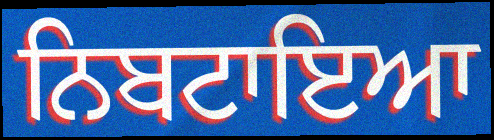
ਨਿਬਟਾਇਆ